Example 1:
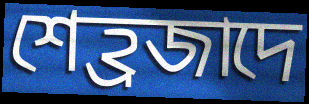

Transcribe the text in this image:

শেহ্রজাদে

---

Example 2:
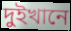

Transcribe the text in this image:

দুইখানে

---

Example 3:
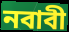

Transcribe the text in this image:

নবাবী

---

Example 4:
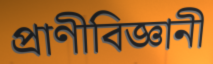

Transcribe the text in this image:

প্রাণীবিজ্ঞানী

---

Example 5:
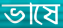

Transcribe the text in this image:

ভাষে